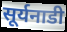
सूर्यनाडी